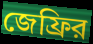
জেফ্রির